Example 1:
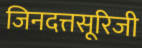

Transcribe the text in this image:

जिनदत्तसूरिजी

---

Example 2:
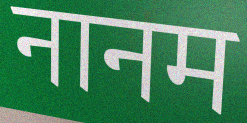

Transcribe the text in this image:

नानम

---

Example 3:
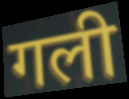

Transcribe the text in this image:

गली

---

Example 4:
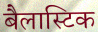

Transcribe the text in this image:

बैलास्टिक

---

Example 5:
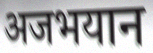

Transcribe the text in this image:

अजभयान